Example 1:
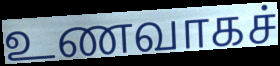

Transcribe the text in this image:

உணவாகச்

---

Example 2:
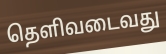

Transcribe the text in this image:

தெளிவடைவது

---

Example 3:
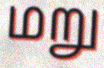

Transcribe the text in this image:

மறு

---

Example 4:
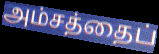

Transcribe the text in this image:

அம்சத்தைப்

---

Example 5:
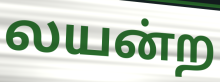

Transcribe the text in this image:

லயன்ற